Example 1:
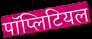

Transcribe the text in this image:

पॉप्लिटियल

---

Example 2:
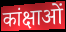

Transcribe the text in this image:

कांक्षाओं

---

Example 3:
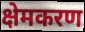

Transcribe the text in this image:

क्षेमकरण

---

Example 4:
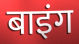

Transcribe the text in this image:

बाइंग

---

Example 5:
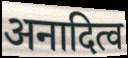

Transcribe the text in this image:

अनादित्व